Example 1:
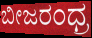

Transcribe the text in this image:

ಬೀಜರಂಧ್ರ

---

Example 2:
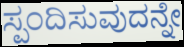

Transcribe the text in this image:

ಸ್ಪಂದಿಸುವುದನ್ನೇ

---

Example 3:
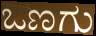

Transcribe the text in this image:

ಒಣಗು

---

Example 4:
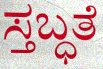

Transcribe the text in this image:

ಸ್ತಬ್ಧತೆ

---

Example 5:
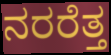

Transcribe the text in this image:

ನರರೆತ್ತ